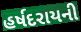
હર્ષદરાયની